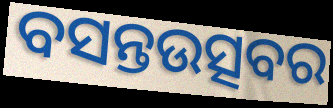
ବସନ୍ତଉତ୍ସବର